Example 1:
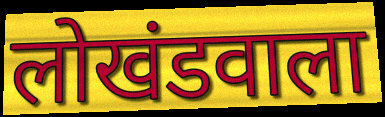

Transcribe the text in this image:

लोखंडवाला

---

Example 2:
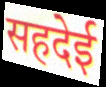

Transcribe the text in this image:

सहदेई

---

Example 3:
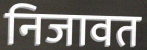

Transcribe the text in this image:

निजावत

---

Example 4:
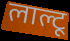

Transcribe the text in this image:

लाल्‍टू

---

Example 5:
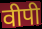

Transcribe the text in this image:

वीपी